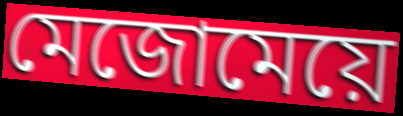
মেজোমেয়ে